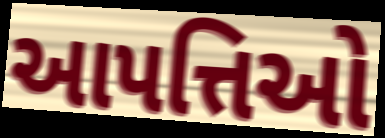
આપત્તિઓ